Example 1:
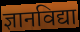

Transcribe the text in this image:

ज्ञानविद्या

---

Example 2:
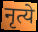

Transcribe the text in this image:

नृत्ये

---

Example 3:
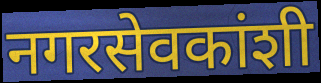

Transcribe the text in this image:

नगरसेवकांशी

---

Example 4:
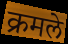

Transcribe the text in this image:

क्रमले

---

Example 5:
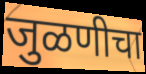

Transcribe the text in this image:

जुळणीचा